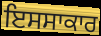
ਇਸਸਾਕਾਰ